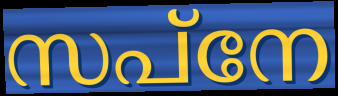
സപ്നേ